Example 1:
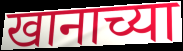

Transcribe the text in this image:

खानाच्या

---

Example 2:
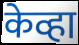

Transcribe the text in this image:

केव्हा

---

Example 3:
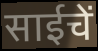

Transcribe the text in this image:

साईचें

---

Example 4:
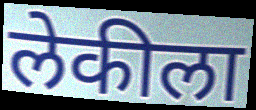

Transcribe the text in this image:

लेकीला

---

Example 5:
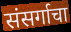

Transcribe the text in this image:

संसर्गाचा